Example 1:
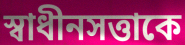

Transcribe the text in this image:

স্বাধীনসত্তাকে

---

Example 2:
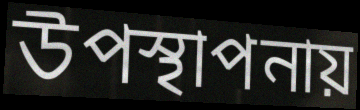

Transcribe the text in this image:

উপস্থাপনায়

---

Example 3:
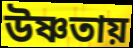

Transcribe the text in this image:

উষ্ণতায়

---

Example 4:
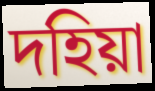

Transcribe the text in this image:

দহিয়া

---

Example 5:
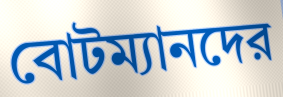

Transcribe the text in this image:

বোটম্যানদের